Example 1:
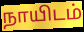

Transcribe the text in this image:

நாயிடம்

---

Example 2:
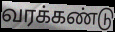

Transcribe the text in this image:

வரக்கண்டு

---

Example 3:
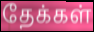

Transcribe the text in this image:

தேக்கள்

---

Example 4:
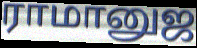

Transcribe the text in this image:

ராமானுஜ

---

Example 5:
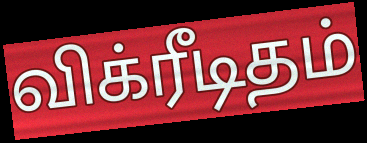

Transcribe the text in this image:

விக்ரீடிதம்